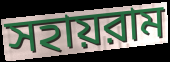
সহায়রাম